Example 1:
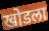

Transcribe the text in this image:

खोडला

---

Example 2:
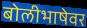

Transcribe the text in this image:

बोलीभाषेवर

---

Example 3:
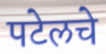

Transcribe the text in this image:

पटेलचे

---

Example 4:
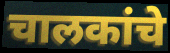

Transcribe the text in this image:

चालकांचे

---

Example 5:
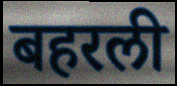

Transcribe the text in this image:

बहरली